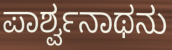
ಪಾರ್ಶ್ವನಾಥನು